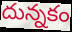
దున్నకం